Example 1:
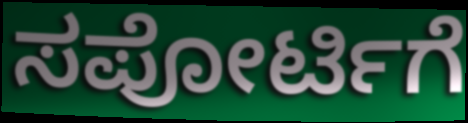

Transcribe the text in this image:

ಸಪೋರ್ಟಿಗೆ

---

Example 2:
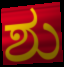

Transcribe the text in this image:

ಶು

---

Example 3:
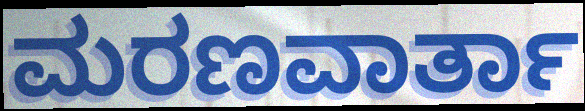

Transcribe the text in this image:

ಮರಣವಾರ್ತಾ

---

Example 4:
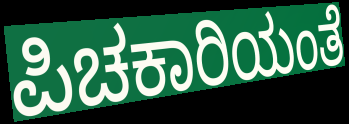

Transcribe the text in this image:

ಪಿಚಕಾರಿಯಂತೆ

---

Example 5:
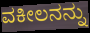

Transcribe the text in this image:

ವಕೀಲನನ್ನು